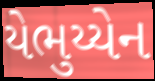
યેભુય્યેન